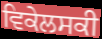
ਵਿਕੇਲਸਕੀ